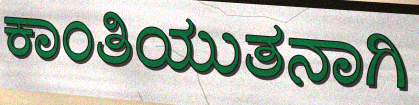
ಕಾಂತಿಯುತನಾಗಿ